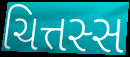
ચિત્તસ્સ